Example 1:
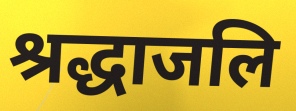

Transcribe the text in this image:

श्रद्धाजलि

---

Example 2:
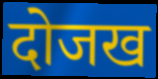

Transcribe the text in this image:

दोजख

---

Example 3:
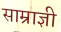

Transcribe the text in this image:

साम्राज्ञी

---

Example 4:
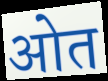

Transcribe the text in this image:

ओत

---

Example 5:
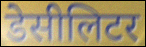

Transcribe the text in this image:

डेसीलिटर